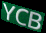
YCB